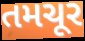
તમચૂર